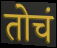
तोचं